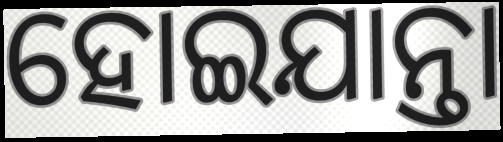
ହୋଇଯାନ୍ତା